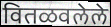
वितळवलेले